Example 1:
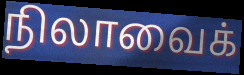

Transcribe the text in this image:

நிலாவைக்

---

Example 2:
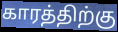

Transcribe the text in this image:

காரத்திற்கு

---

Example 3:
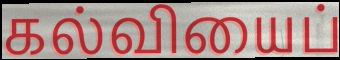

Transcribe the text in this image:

கல்வியைப்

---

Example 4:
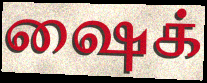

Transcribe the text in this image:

ஷைக்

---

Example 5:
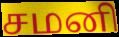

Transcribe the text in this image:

சமனி